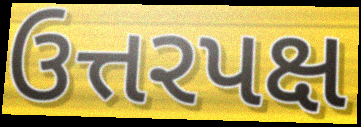
ઉત્તરપક્ષ